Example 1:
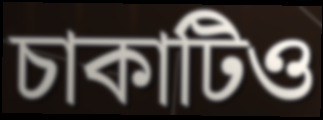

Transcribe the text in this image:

চাকাটিও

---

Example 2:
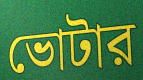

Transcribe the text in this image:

ভোটার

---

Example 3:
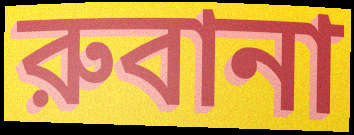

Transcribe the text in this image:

রুবানা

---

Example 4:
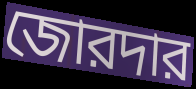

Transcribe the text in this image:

জোরদার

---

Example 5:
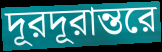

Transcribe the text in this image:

দূরদূরান্তরে